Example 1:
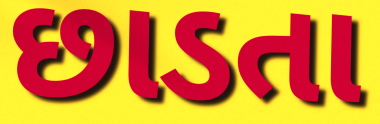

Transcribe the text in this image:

છાડતા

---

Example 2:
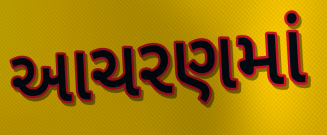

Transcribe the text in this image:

આચરણમાં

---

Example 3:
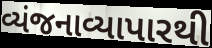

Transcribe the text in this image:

વ્યંજનાવ્યાપારથી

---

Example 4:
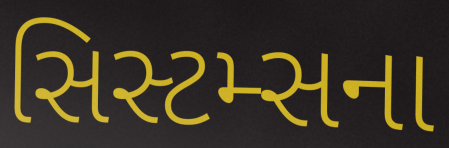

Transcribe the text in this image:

સિસ્ટમ્સના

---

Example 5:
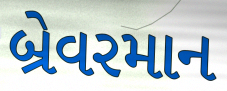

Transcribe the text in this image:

બ્રેવરમાન